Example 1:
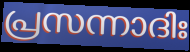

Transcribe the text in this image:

പ്രസന്നാദിഃ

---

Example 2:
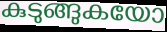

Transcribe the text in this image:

കുടുങ്ങുകയോ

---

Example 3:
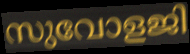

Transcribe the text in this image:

സുവോളജി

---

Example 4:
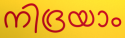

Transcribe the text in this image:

നിദ്രയാം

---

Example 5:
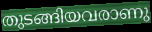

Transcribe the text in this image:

തുടങ്ങിയവരാണു